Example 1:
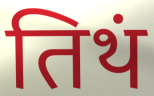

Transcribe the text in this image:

तिथं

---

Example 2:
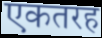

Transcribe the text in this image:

एकतरह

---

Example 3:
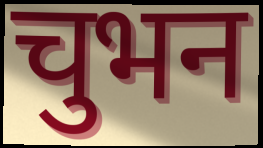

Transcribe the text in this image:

चुभन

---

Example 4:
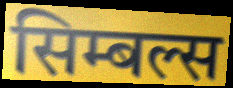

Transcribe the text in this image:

सिम्बल्स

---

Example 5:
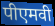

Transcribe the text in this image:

पीएमवी